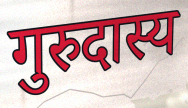
गुरुदास्य